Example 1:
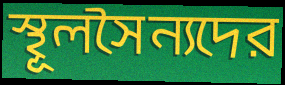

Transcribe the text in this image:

স্থূলসৈন্যদের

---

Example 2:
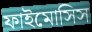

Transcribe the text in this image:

ফাইমোসিস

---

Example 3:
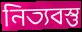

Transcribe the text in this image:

নিত্যবস্তু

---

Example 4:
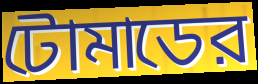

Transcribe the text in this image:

টোমাডের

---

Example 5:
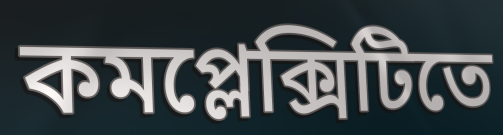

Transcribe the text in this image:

কমপ্লেক্সিটিতে